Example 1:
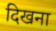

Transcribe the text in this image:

दिखना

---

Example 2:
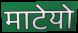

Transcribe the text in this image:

माटेयो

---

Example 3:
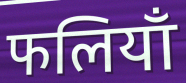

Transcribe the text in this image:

फलियाँ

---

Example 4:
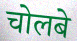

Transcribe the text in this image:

चोलबे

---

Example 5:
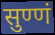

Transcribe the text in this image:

सुण्णं